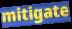
mitigate